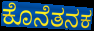
ಕೊನೆತನಕ